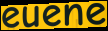
euene